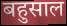
बहुसाल